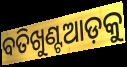
ବତିଖୁଣ୍ଟଆଡ଼କୁ